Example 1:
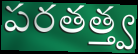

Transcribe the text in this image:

పరతత్త్వ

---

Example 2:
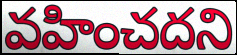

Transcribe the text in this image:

వహించదని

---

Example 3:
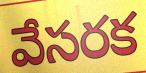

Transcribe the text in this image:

వేసరక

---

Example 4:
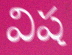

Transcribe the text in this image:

విష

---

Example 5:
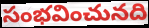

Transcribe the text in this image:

సంభవించునది